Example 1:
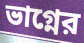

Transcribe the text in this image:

ভাগ্নের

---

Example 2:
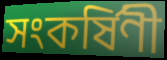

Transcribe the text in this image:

সংকর্ষিণী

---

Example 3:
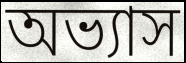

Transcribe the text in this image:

অভ্যাস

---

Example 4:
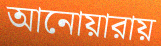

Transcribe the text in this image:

আনোয়ারায়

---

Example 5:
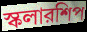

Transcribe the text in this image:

স্কলারশিপ